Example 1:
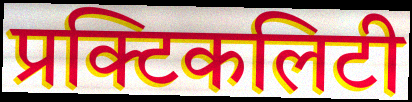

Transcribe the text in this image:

प्रक्टिकलिटी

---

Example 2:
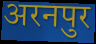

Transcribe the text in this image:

अरनपुर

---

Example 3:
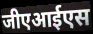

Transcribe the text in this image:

जीएआईएस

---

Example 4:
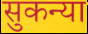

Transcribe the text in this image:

सुकन्या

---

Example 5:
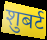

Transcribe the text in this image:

शुबर्ट